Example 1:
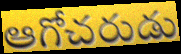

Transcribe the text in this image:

ఆగోచరుడు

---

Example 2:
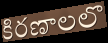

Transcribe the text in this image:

కిరణాలలొ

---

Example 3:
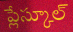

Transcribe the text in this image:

ప్లేస్కూల్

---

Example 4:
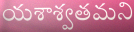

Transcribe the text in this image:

యశాశ్వతమని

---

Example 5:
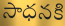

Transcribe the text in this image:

సాధనకి